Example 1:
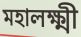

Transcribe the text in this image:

মহালক্ষ্মী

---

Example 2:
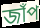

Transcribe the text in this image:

জাঁপ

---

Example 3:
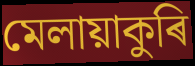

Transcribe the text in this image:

মেলায়াকুৰি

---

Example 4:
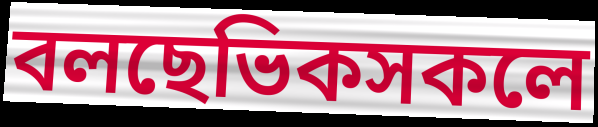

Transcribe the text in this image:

বলছেভিকসকলে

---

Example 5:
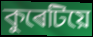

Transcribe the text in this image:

কুৰেটিয়ে